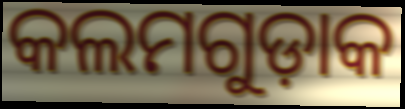
କଲମଗୁଡ଼ାକ